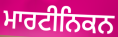
ਮਾਰਟੀਨਿਕਨ